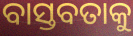
ବାସ୍ତବତାକୁ